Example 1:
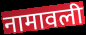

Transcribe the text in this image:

नामावली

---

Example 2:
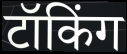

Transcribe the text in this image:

टॉकिंग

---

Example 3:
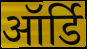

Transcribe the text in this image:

ऑर्डि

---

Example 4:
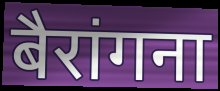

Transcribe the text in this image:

बैरांगना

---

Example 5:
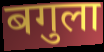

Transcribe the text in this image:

बगुला